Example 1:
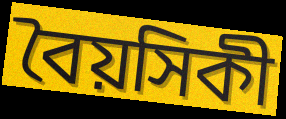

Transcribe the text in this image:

বৈয়সিকী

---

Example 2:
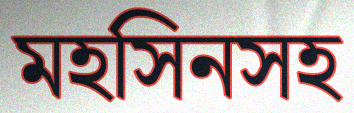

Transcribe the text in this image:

মহসিনসহ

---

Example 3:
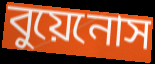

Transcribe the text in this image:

বুয়েনোস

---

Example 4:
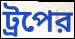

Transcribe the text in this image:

ট্রপের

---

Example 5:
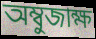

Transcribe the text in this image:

অম্বুজাক্ষ